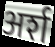
अर्श